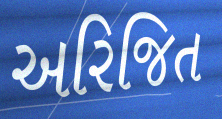
અરિજિત